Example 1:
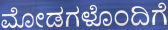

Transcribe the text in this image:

ಮೋಡಗಳೊಂದಿಗೆ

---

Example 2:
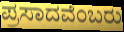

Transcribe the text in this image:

ಪ್ರಸಾದವೆಂಬರು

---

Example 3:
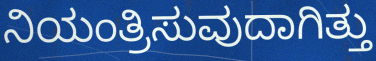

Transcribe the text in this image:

ನಿಯಂತ್ರಿಸುವುದಾಗಿತ್ತು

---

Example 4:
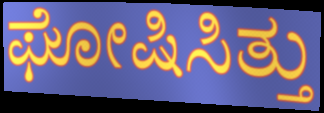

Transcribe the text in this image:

ಘೋಷಿಸಿತ್ತು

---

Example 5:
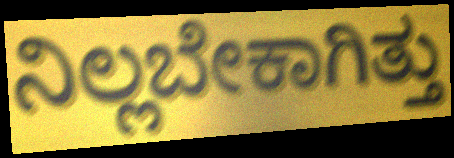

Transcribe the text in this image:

ನಿಲ್ಲಬೇಕಾಗಿತ್ತು